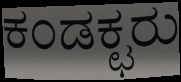
ಕಂಡಕ್ಟರು